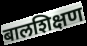
बालशिक्षण